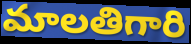
మాలతిగారి